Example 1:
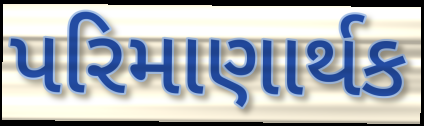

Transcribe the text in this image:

પરિમાણાર્થક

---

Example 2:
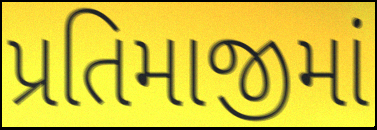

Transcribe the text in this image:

પ્રતિમાજીમાં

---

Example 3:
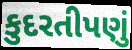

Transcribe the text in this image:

કુદરતીપણું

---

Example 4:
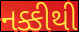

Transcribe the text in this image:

નક્કીથી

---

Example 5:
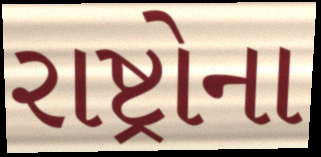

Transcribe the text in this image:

રાષ્ટ્રોના